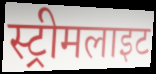
स्ट्रीमलाइट